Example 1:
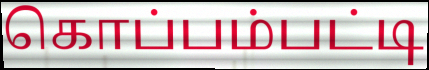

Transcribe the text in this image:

கொப்பம்பட்டி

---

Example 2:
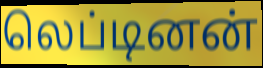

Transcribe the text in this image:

லெப்டினன்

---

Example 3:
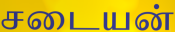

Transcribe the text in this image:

சடையன்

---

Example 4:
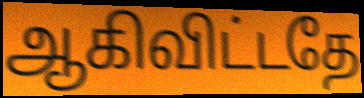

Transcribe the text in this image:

ஆகிவிட்டதே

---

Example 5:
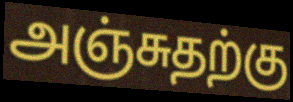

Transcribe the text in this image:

அஞ்சுதற்கு